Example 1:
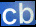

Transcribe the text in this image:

cb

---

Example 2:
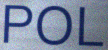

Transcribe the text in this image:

POL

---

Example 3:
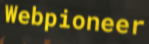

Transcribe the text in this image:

Webpioneer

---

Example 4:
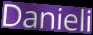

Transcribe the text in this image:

Danieli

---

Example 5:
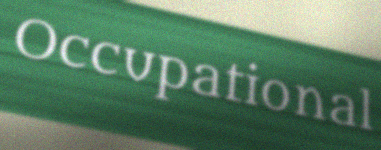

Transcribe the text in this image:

Occupational